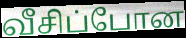
வீசிப்போன